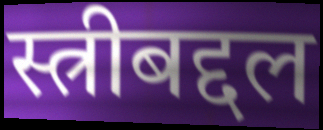
स्त्रीबद्दल